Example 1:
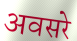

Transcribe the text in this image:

अवसरे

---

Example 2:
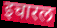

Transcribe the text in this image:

इचारल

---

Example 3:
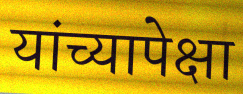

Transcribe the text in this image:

यांच्यापेक्षा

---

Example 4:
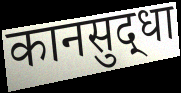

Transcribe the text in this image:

कानसुद्धा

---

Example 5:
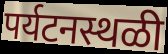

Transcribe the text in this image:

पर्यटनस्थळी